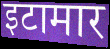
इटामार